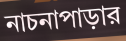
নাচনাপাড়ার